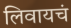
लिवायचं